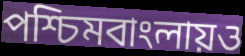
পশ্চিমবাংলায়ও